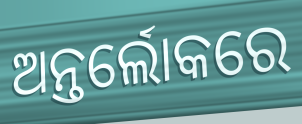
ଅନ୍ତର୍ଲୋକରେ